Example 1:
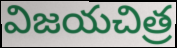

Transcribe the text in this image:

విజయచిత్ర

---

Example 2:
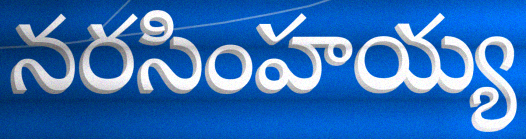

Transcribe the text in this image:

నరసింహయ్య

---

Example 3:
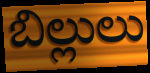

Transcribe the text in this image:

బిల్లులు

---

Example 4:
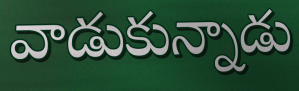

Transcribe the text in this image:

వాడుకున్నాడు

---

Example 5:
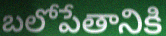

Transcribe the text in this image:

బలోపేతానికి